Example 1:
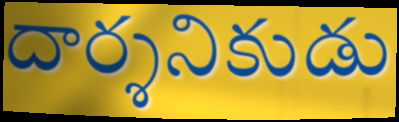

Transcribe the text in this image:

దార్శనికుడు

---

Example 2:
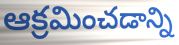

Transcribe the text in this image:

ఆక్రమించడాన్ని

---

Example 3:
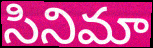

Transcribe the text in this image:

సినిమా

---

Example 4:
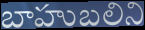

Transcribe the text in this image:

బాహుబలిని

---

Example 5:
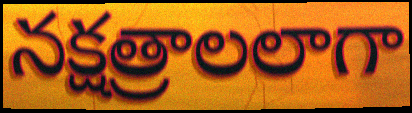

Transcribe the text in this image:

నక్షత్రాలలాగా